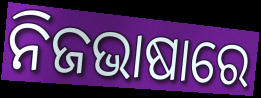
ନିଜଭାଷାରେ